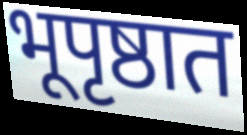
भूपृष्ठात